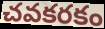
చవకరకం